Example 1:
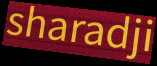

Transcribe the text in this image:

sharadji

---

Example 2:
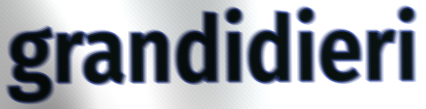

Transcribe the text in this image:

grandidieri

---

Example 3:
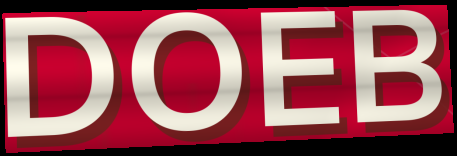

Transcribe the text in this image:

DOEB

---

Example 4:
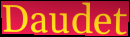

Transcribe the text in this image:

Daudet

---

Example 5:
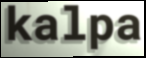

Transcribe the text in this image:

kalpa